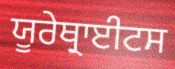
ਯੂਰੇਥ੍ਰਾਈਟਸ